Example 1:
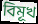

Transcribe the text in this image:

বিমূখ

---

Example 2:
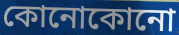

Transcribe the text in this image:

কোনোকোনো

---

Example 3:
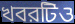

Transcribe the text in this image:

খবরটিও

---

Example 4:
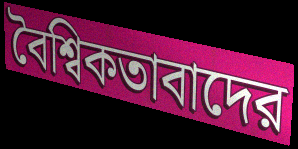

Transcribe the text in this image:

বৈশ্বিকতাবাদের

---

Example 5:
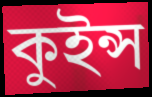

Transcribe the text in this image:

কুইন্স